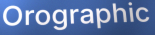
Orographic